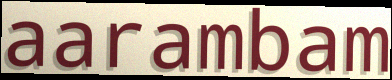
aarambam